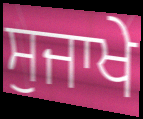
ਸੁਜਾਖੇ